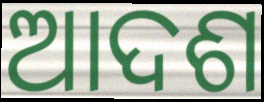
ଆଦଶ